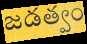
జడత్వం